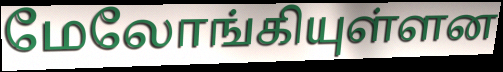
மேலோங்கியுள்ளன